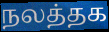
நலத்தக